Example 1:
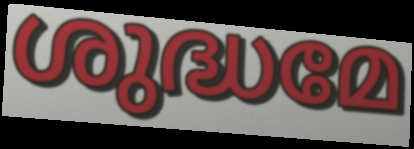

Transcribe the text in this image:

ശുദ്ധമേ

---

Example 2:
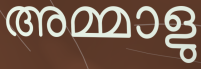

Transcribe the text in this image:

അമ്മാളു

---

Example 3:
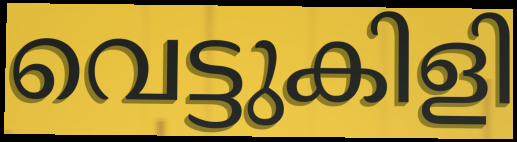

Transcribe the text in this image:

വെട്ടുകിളി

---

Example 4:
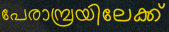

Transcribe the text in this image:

പേരാമ്പ്രയിലേക്ക്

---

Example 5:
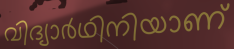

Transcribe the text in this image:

വിദ്യാർഥിനിയാണ്